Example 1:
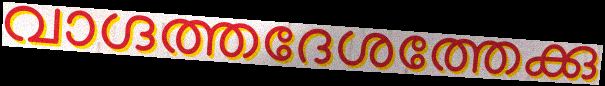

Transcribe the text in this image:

വാഗ്ദത്തദേശത്തേക്കു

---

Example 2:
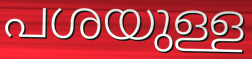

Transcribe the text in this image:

പശയുള്ള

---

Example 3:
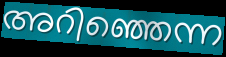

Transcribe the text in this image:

അറിഞ്ഞെന്ന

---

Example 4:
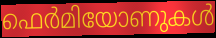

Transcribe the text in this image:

ഫെർമിയോണുകൾ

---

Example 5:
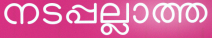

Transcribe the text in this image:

നടപ്പല്ലാത്ത